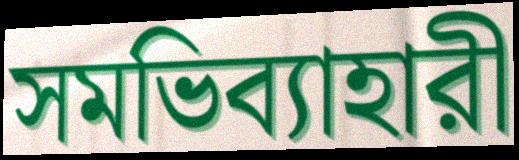
সমভিব্যাহারী